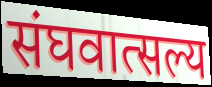
संघवात्सल्य